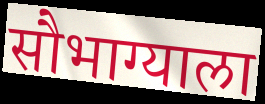
सौभाग्याला